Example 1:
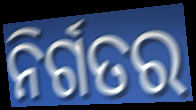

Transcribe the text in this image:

ନିର୍ଗତର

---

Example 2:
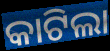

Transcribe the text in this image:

କାଟିଲା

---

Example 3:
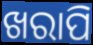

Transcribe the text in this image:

ଖରାପି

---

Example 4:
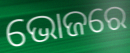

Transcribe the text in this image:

ଭୋଜରେ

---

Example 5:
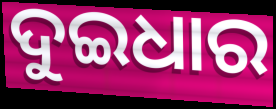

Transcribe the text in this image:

ଦୁଇଧାର